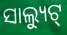
ସାଲ୍ୟୁଟ୍